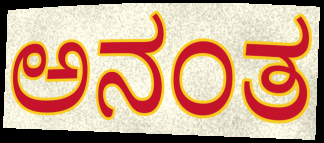
ಅನಂತ